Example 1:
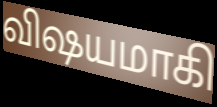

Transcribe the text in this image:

விஷயமாகி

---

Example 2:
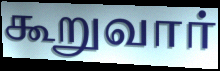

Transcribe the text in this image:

கூறுவார்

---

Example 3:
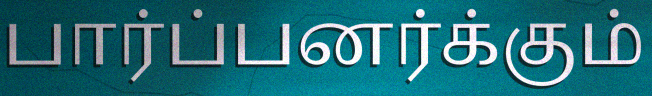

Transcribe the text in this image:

பார்ப்பனர்க்கும்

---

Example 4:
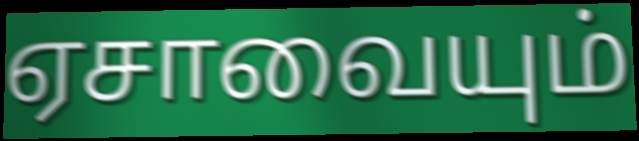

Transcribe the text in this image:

ஏசாவையும்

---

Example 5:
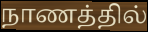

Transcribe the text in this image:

நாணத்தில்